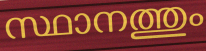
സ്ഥാനത്തും